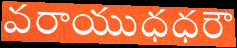
వరాయుధధరౌ